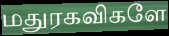
மதுரகவிகளே